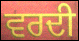
ਵਰਦੀ